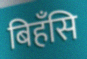
बिहँसि